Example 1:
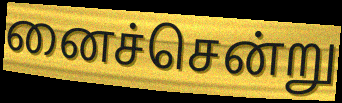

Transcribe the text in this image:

னைச்சென்று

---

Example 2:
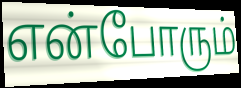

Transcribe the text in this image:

என்போரும்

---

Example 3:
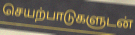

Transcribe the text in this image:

செயற்பாடுகளுடன்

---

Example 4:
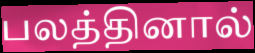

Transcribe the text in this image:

பலத்தினால்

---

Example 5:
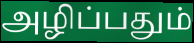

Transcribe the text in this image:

அழிப்பதும்